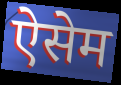
ऐसेम